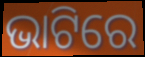
ଭାଟିରେ